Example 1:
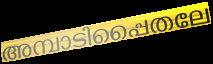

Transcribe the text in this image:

അമ്പാടിപ്പൈതലേ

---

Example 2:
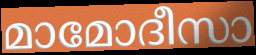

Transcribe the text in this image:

മാമോദീസാ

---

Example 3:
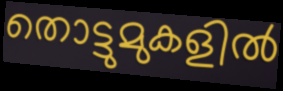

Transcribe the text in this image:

തൊട്ടുമുകളിൽ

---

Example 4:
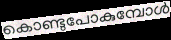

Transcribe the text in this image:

കൊണ്ടുപോകുമ്പോൾ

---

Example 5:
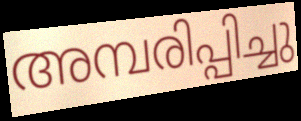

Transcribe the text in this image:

അമ്പരിപ്പിച്ചു